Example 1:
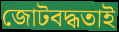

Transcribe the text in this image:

জোটবদ্ধতাই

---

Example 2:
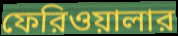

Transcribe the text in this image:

ফেরিওয়ালার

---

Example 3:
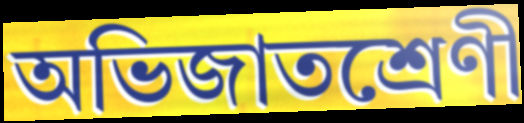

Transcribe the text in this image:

অভিজাতশ্রেণী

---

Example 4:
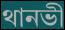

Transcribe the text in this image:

থানভী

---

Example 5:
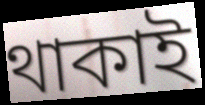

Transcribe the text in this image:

থাকাই